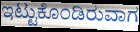
ಇಟ್ಟುಕೊಂಡಿರುವಾಗ